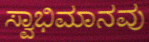
ಸ್ವಾಭಿಮಾನವು